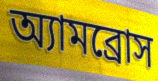
অ্যামব্রোস